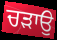
ਚੜਾਉ